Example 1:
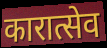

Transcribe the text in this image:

कारात्सेव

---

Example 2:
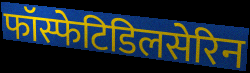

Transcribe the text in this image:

फॉस्फेटिडिलसेरिन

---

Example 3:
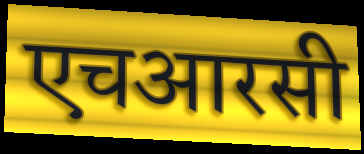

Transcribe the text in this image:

एचआरसी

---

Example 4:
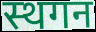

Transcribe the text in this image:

स्थगन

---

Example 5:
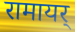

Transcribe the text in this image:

रामायर्